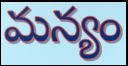
మన్యం